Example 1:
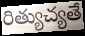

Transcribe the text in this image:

రిత్యుచ్యతే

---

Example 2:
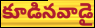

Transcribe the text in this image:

కూడినవాడై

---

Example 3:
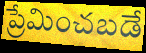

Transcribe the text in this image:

ప్రేమించబడే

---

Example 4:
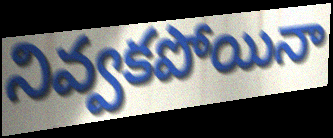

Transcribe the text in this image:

నివ్వకపోయినా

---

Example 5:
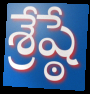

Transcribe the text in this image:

శ్రేష్ఠే